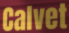
Calvet